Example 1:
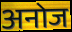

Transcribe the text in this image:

अनोज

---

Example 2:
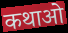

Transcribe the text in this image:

कथाओ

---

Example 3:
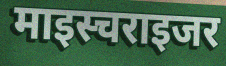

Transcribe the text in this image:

माइस्चराइजर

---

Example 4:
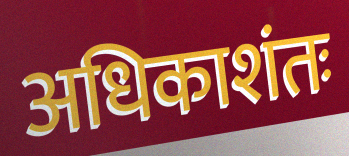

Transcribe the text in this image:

अधिकाशंतः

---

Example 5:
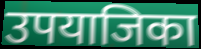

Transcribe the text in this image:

उपयाजिका